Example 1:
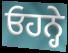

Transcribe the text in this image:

ਓਹਨ੍ਹੇ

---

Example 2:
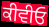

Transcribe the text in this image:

ਕੀਵੀਓ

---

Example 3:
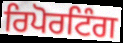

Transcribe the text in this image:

ਰਿਪੋਰਟਿੰਗ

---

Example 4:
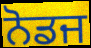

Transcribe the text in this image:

ਨੋਡਜ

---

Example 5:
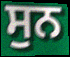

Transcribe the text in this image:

ਸੁਨ